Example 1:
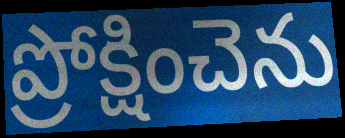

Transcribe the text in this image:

ప్రోక్షించెను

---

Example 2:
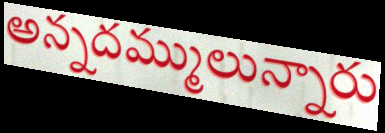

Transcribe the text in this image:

అన్నదమ్ములున్నారు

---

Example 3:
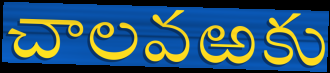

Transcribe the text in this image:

చాలవఱకు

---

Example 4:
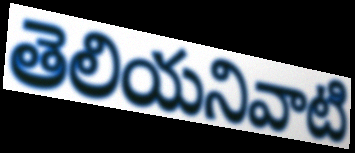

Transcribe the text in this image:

తెలియనివాటి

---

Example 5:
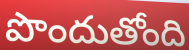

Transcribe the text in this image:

పొందుతోంది